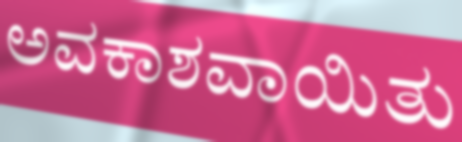
ಅವಕಾಶವಾಯಿತು